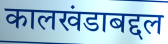
कालखंडाबद्दल